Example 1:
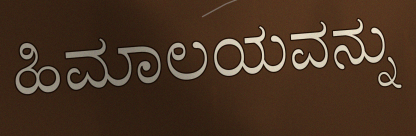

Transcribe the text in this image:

ಹಿಮಾಲಯವನ್ನು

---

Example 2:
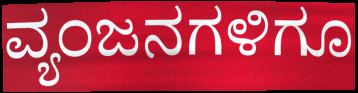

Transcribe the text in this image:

ವ್ಯಂಜನಗಳಿಗೂ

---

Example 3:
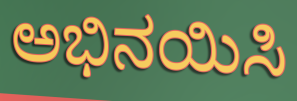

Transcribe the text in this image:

ಅಭಿನಯಿಸಿ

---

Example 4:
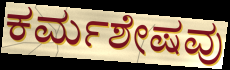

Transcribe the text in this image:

ಕರ್ಮಶೇಷವು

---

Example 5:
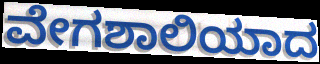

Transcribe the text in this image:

ವೇಗಶಾಲಿಯಾದ